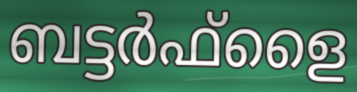
ബട്ടർഫ്ളൈ